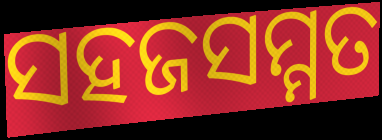
ସହଜସମ୍ମତ